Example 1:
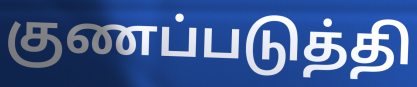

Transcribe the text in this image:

குணப்படுத்தி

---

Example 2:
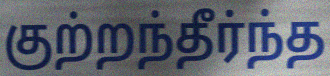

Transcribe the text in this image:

குற்றந்தீர்ந்த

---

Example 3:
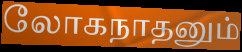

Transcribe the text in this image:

லோகநாதனும்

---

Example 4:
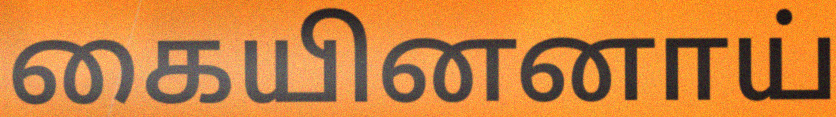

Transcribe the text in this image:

கையினனாய்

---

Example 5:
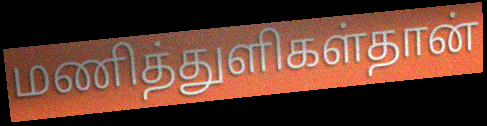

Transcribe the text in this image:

மணித்துளிகள்தான்